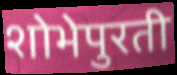
शोभेपुरती